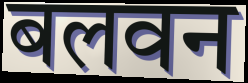
बलवन